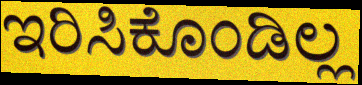
ಇರಿಸಿಕೊಂಡಿಲ್ಲ